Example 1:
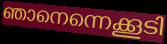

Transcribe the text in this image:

ഞാനെന്നെക്കൂടി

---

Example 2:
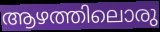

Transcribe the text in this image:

ആഴത്തിലൊരു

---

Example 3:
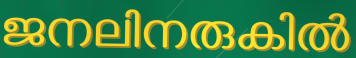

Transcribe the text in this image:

ജനലിനരുകിൽ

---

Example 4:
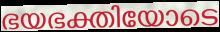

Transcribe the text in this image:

ഭയഭക്തിയോടെ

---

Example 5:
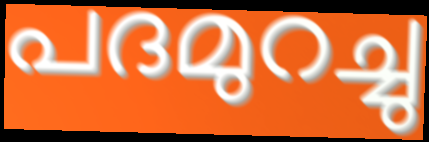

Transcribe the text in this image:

പദമുറച്ചു